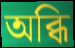
অব্ধি